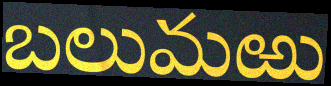
బలుమఱు